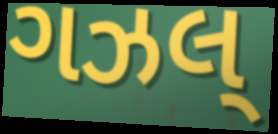
ગઝલ્